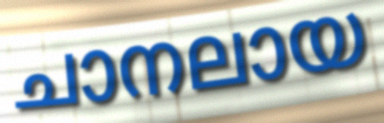
ചാനലായ